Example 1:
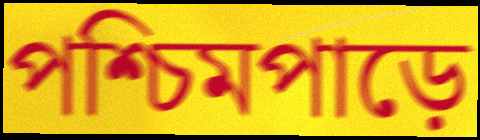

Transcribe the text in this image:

পশ্চিমপাড়ে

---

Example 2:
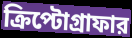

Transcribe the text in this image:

ক্রিপ্টোগ্রাফার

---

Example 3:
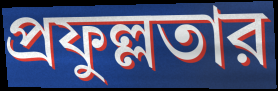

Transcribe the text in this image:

প্রফুল্লতার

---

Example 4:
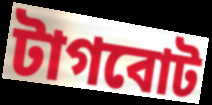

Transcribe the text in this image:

টাগবোট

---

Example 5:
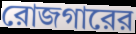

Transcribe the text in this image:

রোজগারের